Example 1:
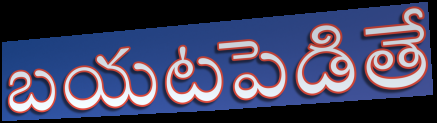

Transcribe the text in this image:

బయటపెడితే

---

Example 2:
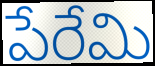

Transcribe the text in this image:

పేరేమి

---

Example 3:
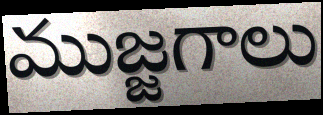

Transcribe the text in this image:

ముజ్జగాలు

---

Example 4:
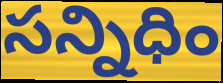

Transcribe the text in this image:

సన్నిధిం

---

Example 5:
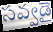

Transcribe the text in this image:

సవ్వడై